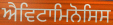
ਐਵਿਟਾਮਿਨੋਸਿਸ